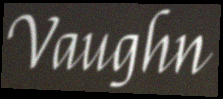
Vaughn